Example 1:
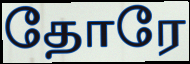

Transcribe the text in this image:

தோரே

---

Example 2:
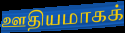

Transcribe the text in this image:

ஊதியமாகக்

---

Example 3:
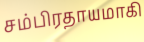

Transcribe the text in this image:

சம்பிரதாயமாகி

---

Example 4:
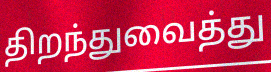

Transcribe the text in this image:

திறந்துவைத்து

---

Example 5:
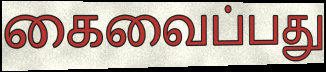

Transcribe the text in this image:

கைவைப்பது